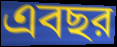
এবছর